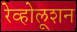
रेव्होलूशन